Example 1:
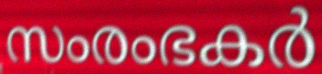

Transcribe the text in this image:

സംരംഭകർ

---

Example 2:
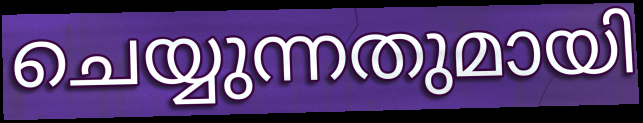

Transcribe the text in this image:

ചെയ്യുന്നതുമായി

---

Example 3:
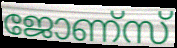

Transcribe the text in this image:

ജോണ്സ്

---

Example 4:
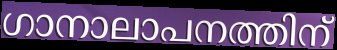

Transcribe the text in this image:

ഗാനാലാപനത്തിന്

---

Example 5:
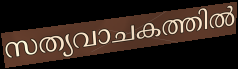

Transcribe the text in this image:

സത്യവാചകത്തിൽ